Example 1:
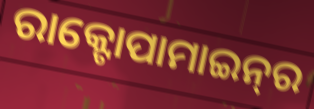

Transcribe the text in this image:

ରାକ୍ଟୋପାମାଇନ୍‌ର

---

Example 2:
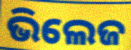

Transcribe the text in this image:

ଭିଲେଜ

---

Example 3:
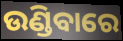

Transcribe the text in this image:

ଉଣ୍ଡିବାରେ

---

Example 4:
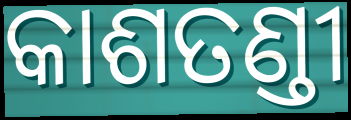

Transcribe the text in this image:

କାଶତଣ୍ଡୀ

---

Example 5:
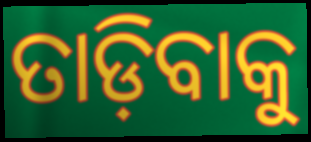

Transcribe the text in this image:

ତାଡ଼ିବାକୁ